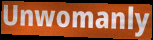
Unwomanly